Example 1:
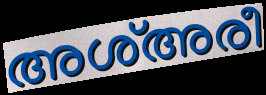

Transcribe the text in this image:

അശ്അരീ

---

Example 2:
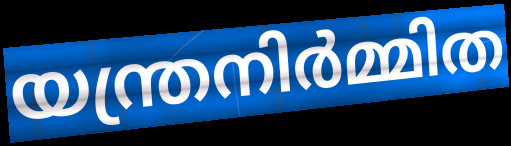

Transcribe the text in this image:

യന്ത്രനിർമ്മിത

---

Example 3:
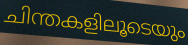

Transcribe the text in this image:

ചിന്തകളിലൂടെയും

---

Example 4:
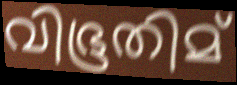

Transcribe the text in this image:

വിഭൂതിമ്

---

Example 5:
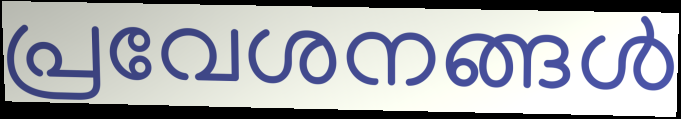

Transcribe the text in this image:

പ്രവേശനങ്ങൾ